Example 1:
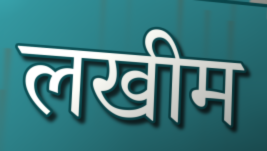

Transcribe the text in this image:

लखीम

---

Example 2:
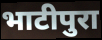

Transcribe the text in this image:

भाटीपुरा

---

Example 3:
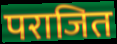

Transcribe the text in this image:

पराजित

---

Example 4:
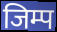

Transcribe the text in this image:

जिम्प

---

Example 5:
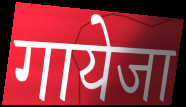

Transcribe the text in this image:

गायेजा